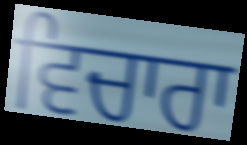
ਵਿਚਾਰਾ